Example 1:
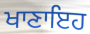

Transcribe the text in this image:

ਖਾਣਾਇਹ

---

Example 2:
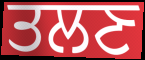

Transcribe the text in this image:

ਤਲਣ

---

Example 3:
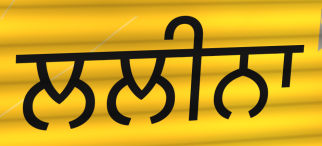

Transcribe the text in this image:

ਲਲੀਨਾ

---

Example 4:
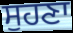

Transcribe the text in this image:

ਸੁਹਣਾ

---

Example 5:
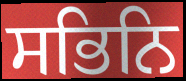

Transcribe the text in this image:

ਸਭਿਨਿ